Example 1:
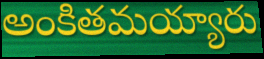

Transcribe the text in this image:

అంకితమయ్యారు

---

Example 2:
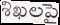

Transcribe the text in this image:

శిఖలపై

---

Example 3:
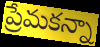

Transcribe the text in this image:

ప్రేమకన్నా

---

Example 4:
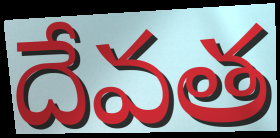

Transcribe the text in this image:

దేవత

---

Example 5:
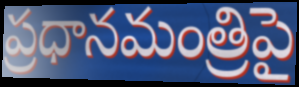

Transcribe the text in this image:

ప్రధానమంత్రిపై